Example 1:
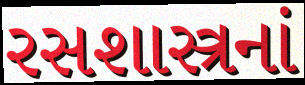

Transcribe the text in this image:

રસશાસ્ત્રનાં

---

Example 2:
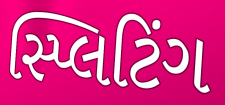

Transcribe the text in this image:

સ્પ્લિટિંગ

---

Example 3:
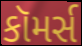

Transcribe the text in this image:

કૉમર્સ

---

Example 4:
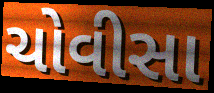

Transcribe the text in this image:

ચોવીસા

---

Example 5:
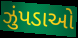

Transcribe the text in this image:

ઝુંપડાઓ